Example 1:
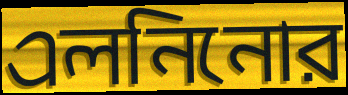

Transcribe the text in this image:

এলনিনোর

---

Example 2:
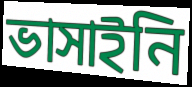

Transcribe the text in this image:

ভাসাইনি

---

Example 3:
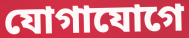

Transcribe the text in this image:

যোগাযোগে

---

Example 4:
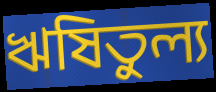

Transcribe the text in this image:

ঋষিতুল্য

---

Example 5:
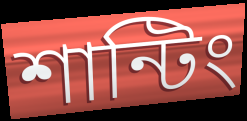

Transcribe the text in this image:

শান্টিং